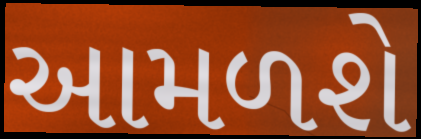
આમળશે